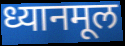
ध्यानमूल